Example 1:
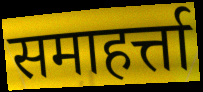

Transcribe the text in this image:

समाहर्त्ता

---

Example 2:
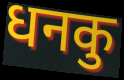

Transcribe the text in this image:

धनकु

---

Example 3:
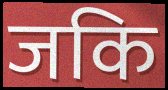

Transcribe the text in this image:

जकि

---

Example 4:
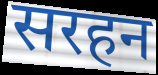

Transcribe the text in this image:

सरहन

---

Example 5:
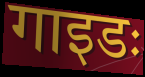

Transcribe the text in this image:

गाइडः